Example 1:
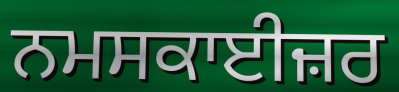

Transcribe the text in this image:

ਨਮਸਕਾਈਜ਼ਰ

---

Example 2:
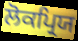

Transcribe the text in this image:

ਲੋਕਪ੍ਰਿਯ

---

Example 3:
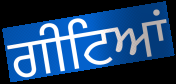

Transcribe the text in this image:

ਗੀਟਿਆਂ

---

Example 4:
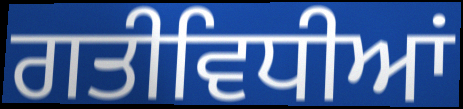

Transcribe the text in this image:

ਗਤੀਵਿਧੀਆਂ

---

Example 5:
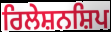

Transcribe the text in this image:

ਰਿਲੇਸ਼ਨਸ਼ਿਪ